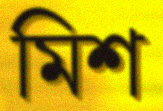
মিশ